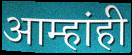
आम्हांही